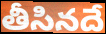
తీసినదే